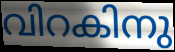
വിറകിനു